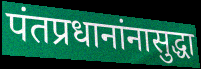
पंतप्रधानांनासुद्धा